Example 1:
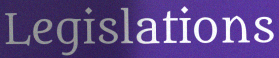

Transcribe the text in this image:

Legislations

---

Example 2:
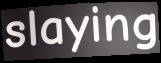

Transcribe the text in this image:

slaying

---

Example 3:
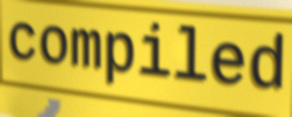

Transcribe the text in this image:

compiled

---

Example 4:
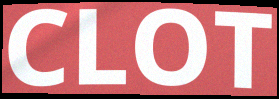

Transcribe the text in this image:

CLOT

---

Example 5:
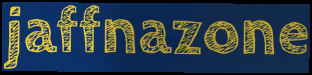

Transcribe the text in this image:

jaffnazone